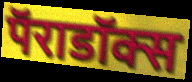
पॅराडॉक्स